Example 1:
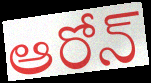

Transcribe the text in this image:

ఆరోన్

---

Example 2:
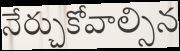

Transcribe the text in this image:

నేర్చుకోవాల్సిన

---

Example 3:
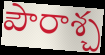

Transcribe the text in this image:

పౌరాశ్చ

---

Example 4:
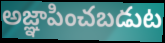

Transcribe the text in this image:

అజ్ఞాపించబడుట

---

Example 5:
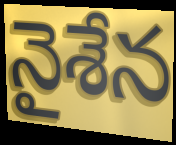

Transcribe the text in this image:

నైశేన